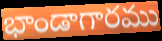
భాండాగారము